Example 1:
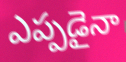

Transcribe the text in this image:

ఎప్పడైనా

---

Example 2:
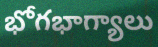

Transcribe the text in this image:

భోగభాగ్యాలు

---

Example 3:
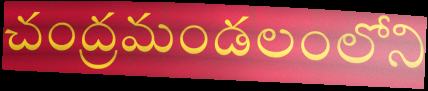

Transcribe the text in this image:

చంద్రమండలంలోని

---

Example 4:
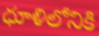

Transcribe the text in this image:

ధూళిలోనికి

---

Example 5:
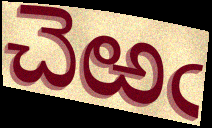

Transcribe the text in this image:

చెఱఁ